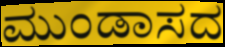
ಮುಂಡಾಸದ